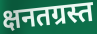
क्षनतग्रस्त